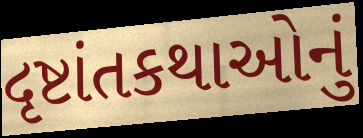
દૃષ્ટાંતકથાઓનું